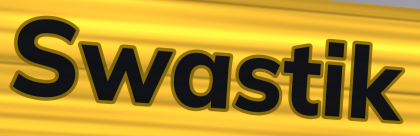
Swastik